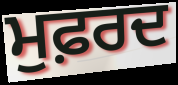
ਮੁਫ਼ਰਦ